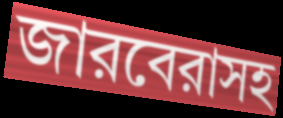
জারবেরাসহ